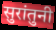
सुरांतुनी